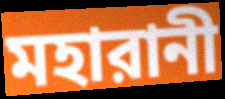
মহারানী